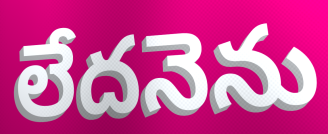
లేదనెను